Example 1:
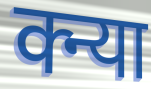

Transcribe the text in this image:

क्न्या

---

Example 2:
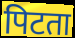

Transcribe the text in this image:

पिटता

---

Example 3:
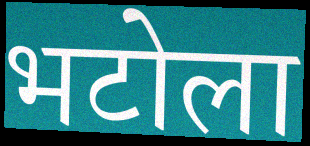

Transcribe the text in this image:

भटोला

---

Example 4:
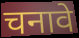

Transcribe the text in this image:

चनावे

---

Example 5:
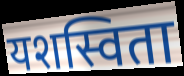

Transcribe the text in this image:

यशस्विता